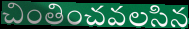
చింతించవలసిన